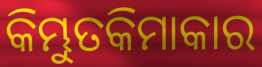
କିମ୍ଭୁତକିମାକାର